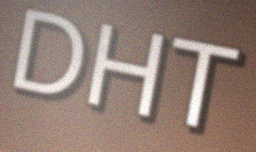
DHT